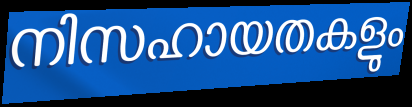
നിസഹായതകളും